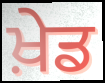
ਖ਼ੇਡ